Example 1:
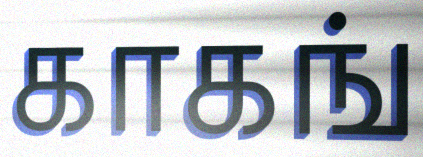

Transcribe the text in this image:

காகங்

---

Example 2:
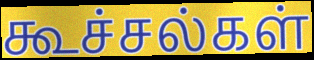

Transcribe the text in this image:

கூச்சல்கள்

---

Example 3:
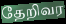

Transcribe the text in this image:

தேறிவர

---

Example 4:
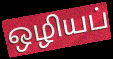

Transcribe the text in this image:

ஒழியப்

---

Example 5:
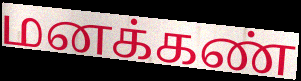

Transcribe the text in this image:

மனக்கண்